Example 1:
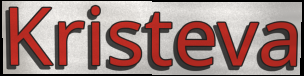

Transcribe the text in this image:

Kristeva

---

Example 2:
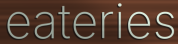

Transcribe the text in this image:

eateries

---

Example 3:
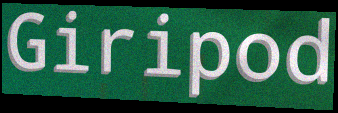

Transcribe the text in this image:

Giripod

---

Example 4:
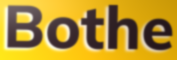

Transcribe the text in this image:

Bothe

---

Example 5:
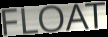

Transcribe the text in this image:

FLOAT